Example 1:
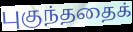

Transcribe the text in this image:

புகுந்ததைக்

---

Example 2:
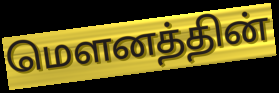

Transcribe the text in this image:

மௌனத்தின்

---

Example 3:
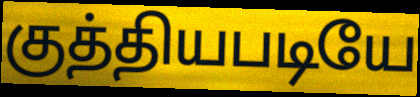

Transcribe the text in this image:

குத்தியபடியே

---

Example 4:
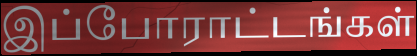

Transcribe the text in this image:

இப்போராட்டங்கள்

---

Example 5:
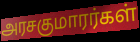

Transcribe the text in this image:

அரசகுமாரர்கள்